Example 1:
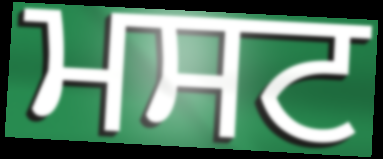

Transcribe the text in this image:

ਮਸਟ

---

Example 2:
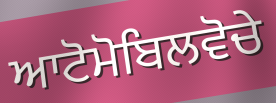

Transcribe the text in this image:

ਆਟੋਮੋਬਿਲਵੋਚੇ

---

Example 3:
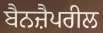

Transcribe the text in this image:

ਬੈਨਜ਼ੈਪਰੀਲ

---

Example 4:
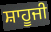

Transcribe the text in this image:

ਸ਼ਾਹੂਜੀ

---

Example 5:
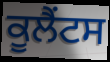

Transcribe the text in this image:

ਕੂਲੈਂਟਸ